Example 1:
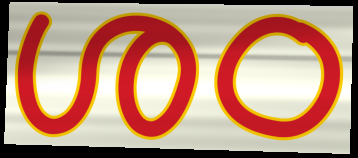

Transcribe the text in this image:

ശഠ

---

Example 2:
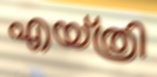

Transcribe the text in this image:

എയ്ത്രി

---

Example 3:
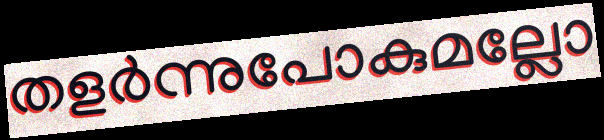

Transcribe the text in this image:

തളർന്നുപോകുമല്ലോ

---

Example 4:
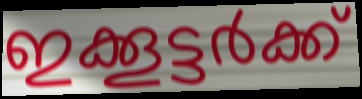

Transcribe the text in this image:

ഇക്കൂട്ടർക്ക്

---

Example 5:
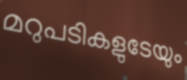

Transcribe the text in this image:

മറുപടികളുടേയും